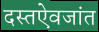
दस्तऐवजांत